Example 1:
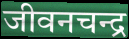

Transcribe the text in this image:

जीवनचन्द्र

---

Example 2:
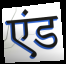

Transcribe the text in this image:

एंड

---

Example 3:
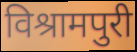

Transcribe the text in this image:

विश्रामपुरी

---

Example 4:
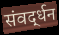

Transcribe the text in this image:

संवर्द्धन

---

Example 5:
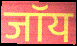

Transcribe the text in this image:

जॉय